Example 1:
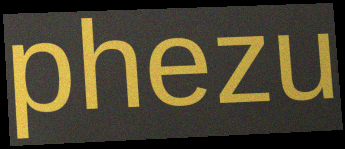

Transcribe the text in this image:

phezu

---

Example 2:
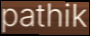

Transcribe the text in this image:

pathik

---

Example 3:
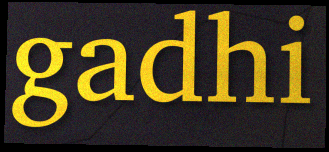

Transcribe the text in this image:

gadhi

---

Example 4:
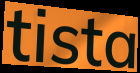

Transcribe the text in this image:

tista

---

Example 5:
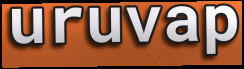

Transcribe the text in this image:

uruvap